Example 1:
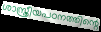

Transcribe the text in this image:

ശാസ്ത്രീയപഠനത്തിന്റെ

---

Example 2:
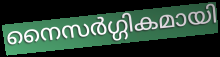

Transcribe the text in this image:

നൈസർഗ്ഗികമായി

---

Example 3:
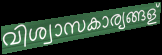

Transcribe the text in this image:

വിശ്വാസകാര്യങ്ങള്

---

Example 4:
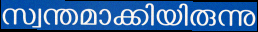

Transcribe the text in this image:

സ്വന്തമാക്കിയിരുന്നു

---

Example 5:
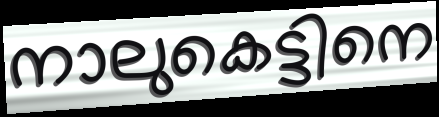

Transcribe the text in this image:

നാലുകെട്ടിനെ